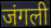
जंगली